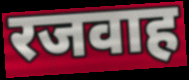
रजवाह